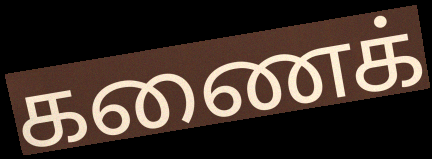
கணைக்